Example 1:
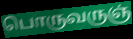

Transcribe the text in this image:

பொருவருஞ்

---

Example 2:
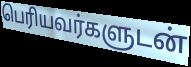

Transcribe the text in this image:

பெரியவர்களுடன்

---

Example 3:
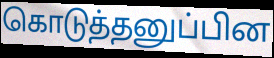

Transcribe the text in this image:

கொடுத்தனுப்பின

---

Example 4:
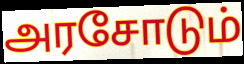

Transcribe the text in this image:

அரசோடும்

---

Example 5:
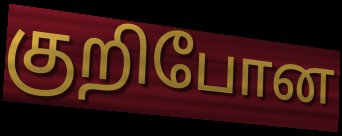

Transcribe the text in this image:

குறிபோன